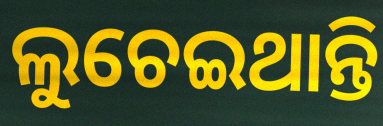
ଲୁଚେଇଥାନ୍ତି